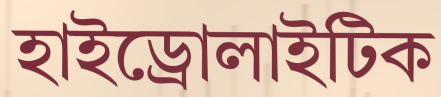
হাইড্রোলাইটিক